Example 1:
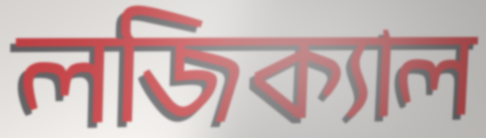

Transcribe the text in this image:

লজিক্যাল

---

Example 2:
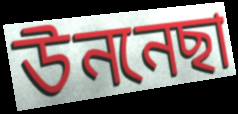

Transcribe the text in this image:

উননেছা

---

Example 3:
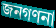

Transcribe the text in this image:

জনগণনা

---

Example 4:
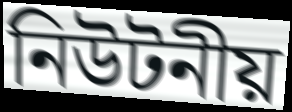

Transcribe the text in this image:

নিউটনীয়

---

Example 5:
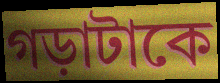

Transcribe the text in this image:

গড়াটাকে